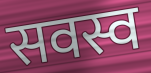
सवस्व